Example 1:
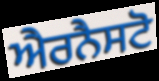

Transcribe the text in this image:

ਐਰਨੈਸਟੋ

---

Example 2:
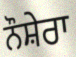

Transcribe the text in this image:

ਨੌਸ਼ੇਰਾ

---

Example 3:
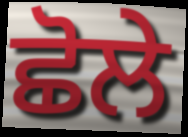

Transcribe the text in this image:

ਛੋਲੇ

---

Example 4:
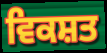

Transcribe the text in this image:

ਵਿਕਸ਼ਤ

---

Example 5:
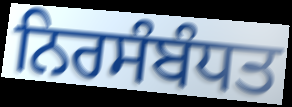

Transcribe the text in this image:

ਨਿਰਸੰਬੰਧਤ